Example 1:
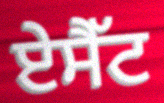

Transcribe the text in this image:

ਏਸੈੱਟ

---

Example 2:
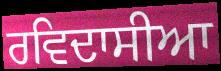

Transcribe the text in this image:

ਰਵਿਦਾਸੀਆ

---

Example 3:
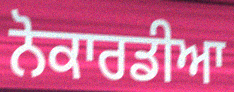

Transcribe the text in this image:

ਨੋਕਾਰਡੀਆ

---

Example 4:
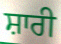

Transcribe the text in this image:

ਸ਼ਾਰੀ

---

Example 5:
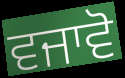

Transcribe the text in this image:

ਵਜਾਵੋ